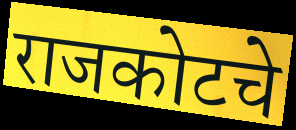
राजकोटचे